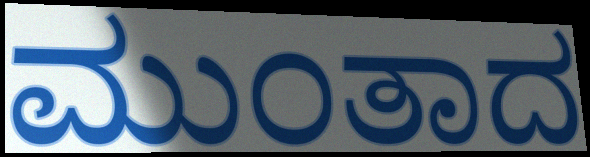
ಮುಂತಾದ